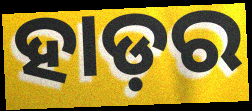
ହାଡ଼ର